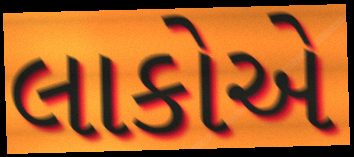
લાકોએ